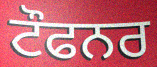
ਟੌਫਨਰ